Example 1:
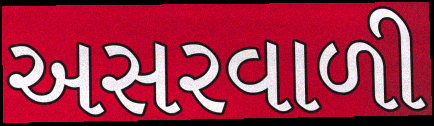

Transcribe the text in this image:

અસરવાળી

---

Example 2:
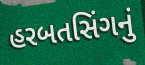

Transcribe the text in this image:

હરબતસિંગનું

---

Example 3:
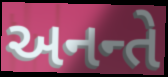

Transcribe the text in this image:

અનન્તે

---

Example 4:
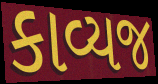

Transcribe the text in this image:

કાવ્યજ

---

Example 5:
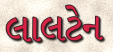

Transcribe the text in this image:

લાલટેન